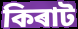
কিৰাট